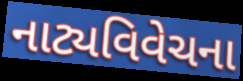
નાટ્યવિવેચના